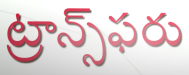
ట్రాన్స్‌ఫరు